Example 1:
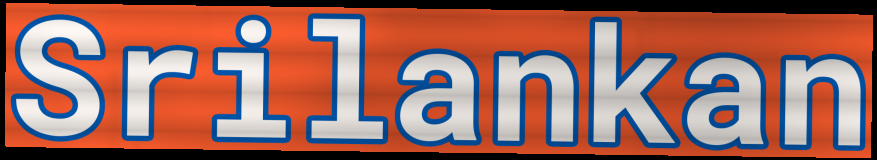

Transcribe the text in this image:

Srilankan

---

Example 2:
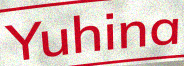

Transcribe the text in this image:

Yuhina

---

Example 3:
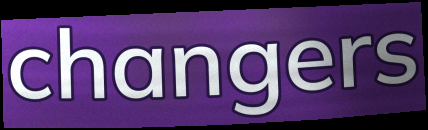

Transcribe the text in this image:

changers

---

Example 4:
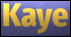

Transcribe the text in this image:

Kaye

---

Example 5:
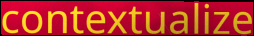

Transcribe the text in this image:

contextualize